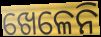
ଖେଳେନି